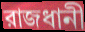
রাজধানী